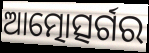
ଆତ୍ମୋତ୍ସର୍ଗର